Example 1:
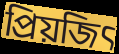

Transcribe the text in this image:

প্রিয়জিৎ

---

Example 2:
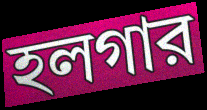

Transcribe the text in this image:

হলগার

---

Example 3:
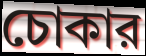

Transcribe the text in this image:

চোকার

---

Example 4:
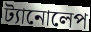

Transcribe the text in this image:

ট্যানোলেপ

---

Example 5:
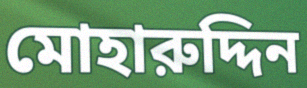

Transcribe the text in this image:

মোহারুদ্দিন